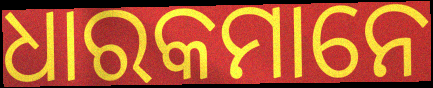
ଧାରକମାନେ